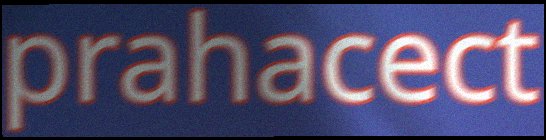
prahacect